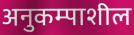
अनुकम्पाशील